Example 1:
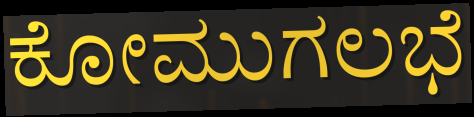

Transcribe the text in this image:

ಕೋಮುಗಲಭೆ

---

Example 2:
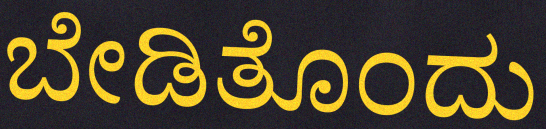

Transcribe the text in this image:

ಬೇಡಿತೊಂದು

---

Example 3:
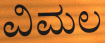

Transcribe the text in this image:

ವಿಮಲ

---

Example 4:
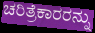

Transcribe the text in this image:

ಚರಿತ್ರೆಕಾರರನ್ನು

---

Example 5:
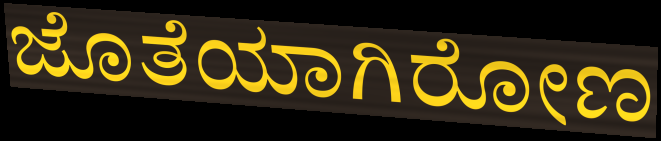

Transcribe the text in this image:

ಜೊತೆಯಾಗಿರೋಣ